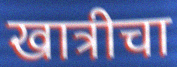
खात्रीचा